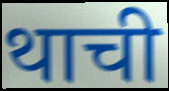
थाची